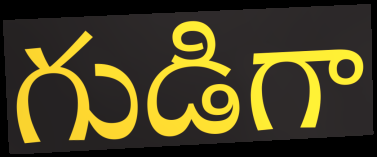
గుడిగా